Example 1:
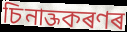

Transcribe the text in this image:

চিনাক্তকৰণৰ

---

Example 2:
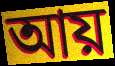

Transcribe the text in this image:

আয়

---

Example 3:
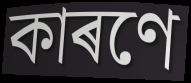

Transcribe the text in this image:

কাৰণে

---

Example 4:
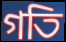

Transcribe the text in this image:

গতি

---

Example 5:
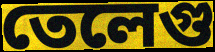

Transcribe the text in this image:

তেলেগু